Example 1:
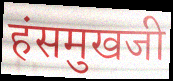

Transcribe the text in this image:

हंसमुखजी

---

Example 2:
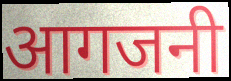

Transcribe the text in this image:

आगजनी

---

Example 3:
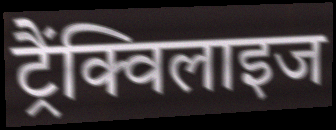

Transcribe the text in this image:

ट्रैंक्विलाइज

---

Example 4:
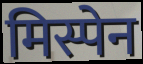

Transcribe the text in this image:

मिस्पेन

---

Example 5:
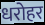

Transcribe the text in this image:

धरोहर